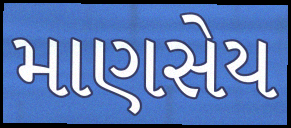
માણસેય